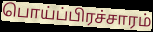
பொய்ப்பிரச்சாரம்